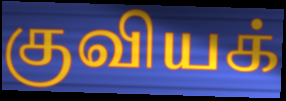
குவியக்